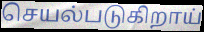
செயல்படுகிறாய்